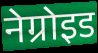
नेग्रोइड